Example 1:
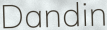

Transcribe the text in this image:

Dandin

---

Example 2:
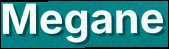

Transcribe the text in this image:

Megane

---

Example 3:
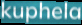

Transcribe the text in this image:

kuphela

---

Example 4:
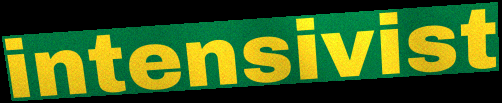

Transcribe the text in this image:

intensivist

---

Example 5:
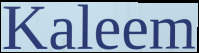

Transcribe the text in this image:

Kaleem